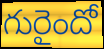
గురైందో